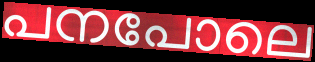
പനപോലെ